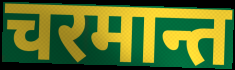
चरमान्त